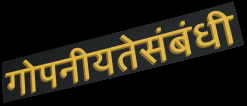
गोपनीयतेसंबंधी